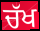
ਚੱਖ